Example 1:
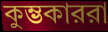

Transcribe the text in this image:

কুম্ভকাররা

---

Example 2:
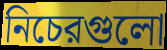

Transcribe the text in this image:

নিচেরগুলো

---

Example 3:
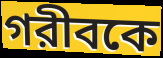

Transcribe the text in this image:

গরীবকে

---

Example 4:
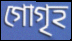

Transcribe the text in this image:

গোগৃহ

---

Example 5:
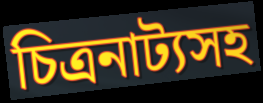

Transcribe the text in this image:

চিত্রনাট্যসহ